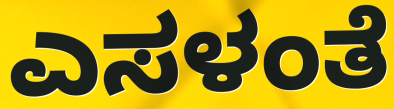
ಎಸಳಂತೆ